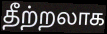
தீற்றலாக